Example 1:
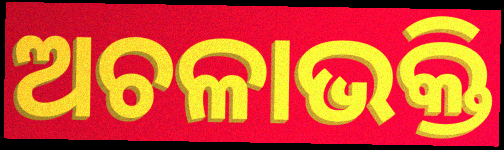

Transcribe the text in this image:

ଅଚଳାଭକ୍ତି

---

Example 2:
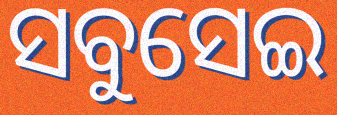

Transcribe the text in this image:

ସବୁସେଇ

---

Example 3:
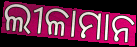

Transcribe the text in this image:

ଲୀଳାମାନ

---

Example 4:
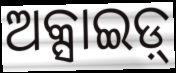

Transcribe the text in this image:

ଅକ୍ସାଇଡ଼୍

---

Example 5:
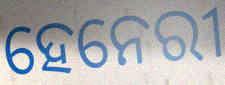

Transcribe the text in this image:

ହେନେରୀ